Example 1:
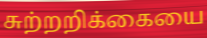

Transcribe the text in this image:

சுற்றறிக்கையை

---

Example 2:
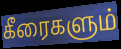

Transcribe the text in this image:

கீரைகளும்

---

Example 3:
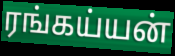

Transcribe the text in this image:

ரங்கய்யன்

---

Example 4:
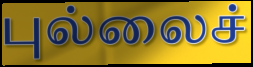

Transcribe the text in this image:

புல்லைச்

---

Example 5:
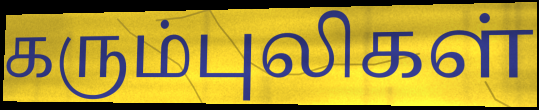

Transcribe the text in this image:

கரும்புலிகள்